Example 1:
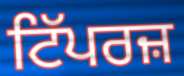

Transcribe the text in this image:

ਟਿੱਪਰਜ਼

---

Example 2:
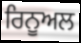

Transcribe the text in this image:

ਰਿਨੂਅਲ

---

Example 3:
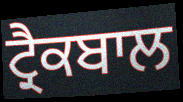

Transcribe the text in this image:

ਟ੍ਰੈਕਬਾਲ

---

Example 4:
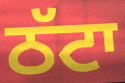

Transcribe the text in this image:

ਠੱਟਾ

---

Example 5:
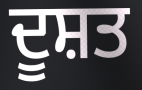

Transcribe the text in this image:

ਦੂਸ਼ਤ